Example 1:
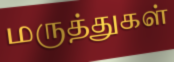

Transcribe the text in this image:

மருத்துகள்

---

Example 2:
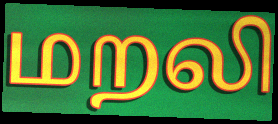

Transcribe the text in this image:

மறலி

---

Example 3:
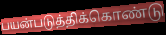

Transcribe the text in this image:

பயன்படுத்திக்கொண்டு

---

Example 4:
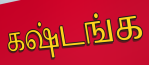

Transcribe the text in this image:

கஷ்டங்க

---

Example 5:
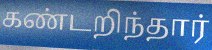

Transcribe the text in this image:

கண்டறிந்தார்